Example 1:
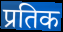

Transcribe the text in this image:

प्रतिक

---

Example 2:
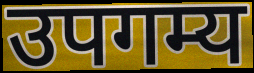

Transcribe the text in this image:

उपगम्य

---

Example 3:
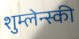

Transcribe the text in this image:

शुम्लेन्स्की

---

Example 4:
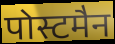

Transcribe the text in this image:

पोस्टमैन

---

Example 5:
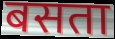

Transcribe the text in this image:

बसता